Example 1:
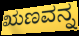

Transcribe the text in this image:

ಋಣವನ್ನ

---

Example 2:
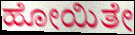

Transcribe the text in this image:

ಹೋಯಿತೇ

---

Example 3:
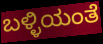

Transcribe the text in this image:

ಬಳ್ಳಿಯಂತೆ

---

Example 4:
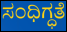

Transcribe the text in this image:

ಸಂಧಿಗ್ಧತೆ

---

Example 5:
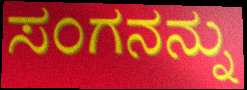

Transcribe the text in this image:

ಸಂಗನನ್ನು